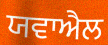
ਯਵਾਐਲ